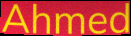
Ahmed